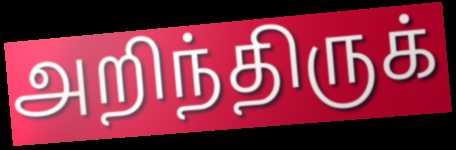
அறிந்திருக்